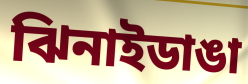
ঝিনাইডাঙা